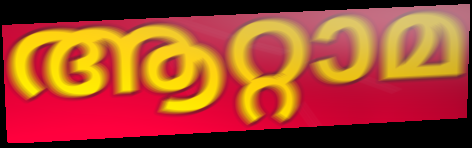
ആറ്റാമ